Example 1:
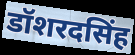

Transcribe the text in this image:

डॉशरदसिंह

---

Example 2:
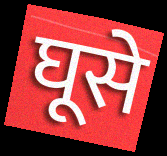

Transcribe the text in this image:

घूसे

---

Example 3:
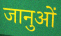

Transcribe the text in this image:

जानुओं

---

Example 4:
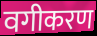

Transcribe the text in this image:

वगीकरण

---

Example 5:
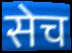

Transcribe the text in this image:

सेच